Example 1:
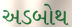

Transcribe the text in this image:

અડબોથ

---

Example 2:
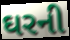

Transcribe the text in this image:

ઘરની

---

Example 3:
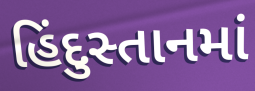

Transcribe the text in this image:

હિંદુસ્તાનમાં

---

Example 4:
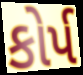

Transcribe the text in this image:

કોર્પ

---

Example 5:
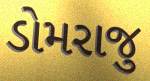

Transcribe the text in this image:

ડોમરાજુ